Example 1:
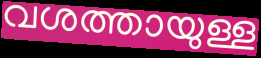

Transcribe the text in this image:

വശത്തായുള്ള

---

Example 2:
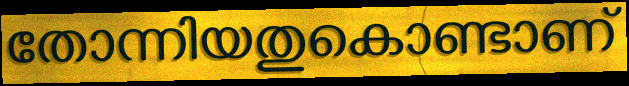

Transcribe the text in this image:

തോന്നിയതുകൊണ്ടാണ്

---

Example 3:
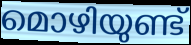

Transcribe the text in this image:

മൊഴിയുണ്ട്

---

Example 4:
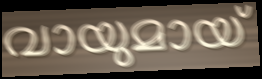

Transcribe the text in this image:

വായുമായ്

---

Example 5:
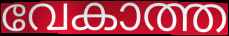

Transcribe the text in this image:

വേകാത്ത